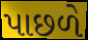
પાછળે